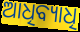
ଆଧିବ୍ୟାଧି